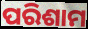
ପରିଶାମ